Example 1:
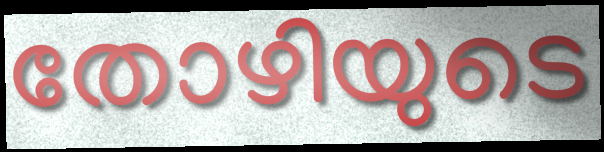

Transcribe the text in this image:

തോഴിയുടെ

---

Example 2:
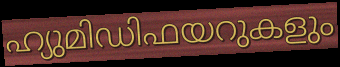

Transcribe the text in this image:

ഹ്യുമിഡിഫയറുകളും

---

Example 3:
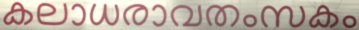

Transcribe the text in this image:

കലാധരാവതംസകം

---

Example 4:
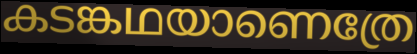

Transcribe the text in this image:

കടങ്കഥയാണെത്രേ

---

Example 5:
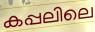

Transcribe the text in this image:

കപ്പലിലെ